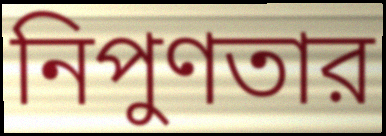
নিপুণতার